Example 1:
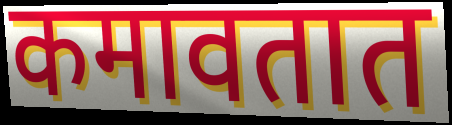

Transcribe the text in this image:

कमावतात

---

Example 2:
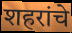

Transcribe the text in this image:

शहरांचे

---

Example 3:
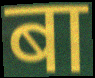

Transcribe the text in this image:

बा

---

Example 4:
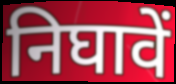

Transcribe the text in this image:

निघावें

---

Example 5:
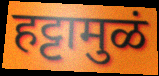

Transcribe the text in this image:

हट्टामुळं